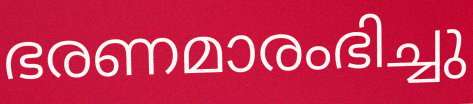
ഭരണമാരംഭിച്ചു